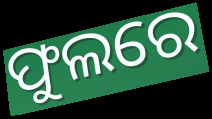
ଫୁଲରେ